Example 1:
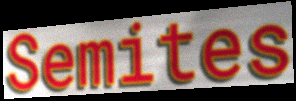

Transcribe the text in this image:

Semites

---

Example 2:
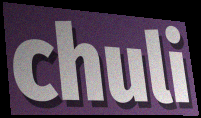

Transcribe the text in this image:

chuli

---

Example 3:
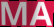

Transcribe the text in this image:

MA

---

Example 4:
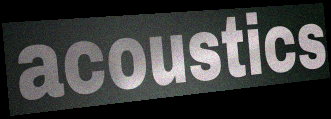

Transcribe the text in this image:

acoustics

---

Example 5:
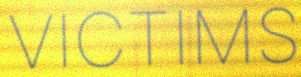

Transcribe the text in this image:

VICTIMS